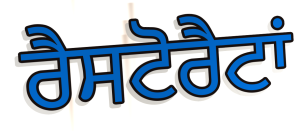
ਰੈਸਟੋਰੈਟਾਂ